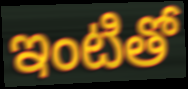
ఇంటితో